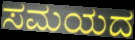
ಸಮಯದ